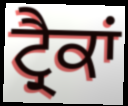
ਟ੍ਰੈਕਾਂ